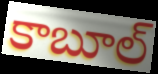
కాబూల్